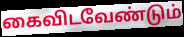
கைவிடவேண்டும்